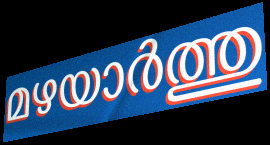
മഴയാർത്തു